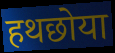
हथछोया